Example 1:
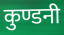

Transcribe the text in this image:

कुण्डनी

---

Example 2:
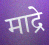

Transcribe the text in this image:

माद्रे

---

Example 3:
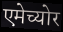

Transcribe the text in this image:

एमेच्योर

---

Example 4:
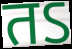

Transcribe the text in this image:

तऽ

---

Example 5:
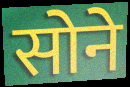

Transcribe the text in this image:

सोने